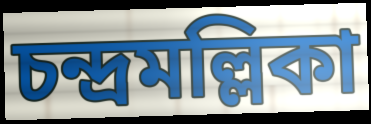
চন্দ্রমল্লিকা